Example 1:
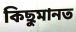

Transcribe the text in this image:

কিছুমানত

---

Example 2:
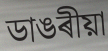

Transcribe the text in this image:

ডাঙৰীয়া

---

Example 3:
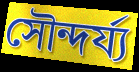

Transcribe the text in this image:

সৌন্দৰ্য্য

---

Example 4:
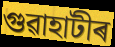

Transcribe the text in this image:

গুৱাহাটীৰ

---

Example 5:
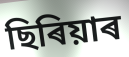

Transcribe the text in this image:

ছিৰিয়াৰ